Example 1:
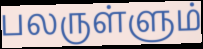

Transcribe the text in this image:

பலருள்ளும்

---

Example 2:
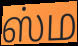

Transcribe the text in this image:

ஸ்ம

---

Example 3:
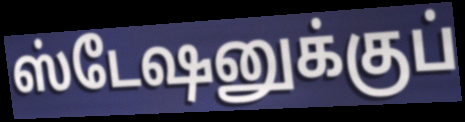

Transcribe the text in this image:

ஸ்டேஷனுக்குப்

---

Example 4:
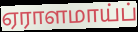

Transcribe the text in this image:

ஏராளமாய்ப்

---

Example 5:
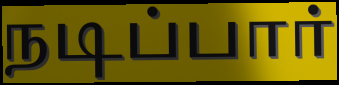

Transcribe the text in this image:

நடிப்பார்